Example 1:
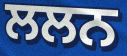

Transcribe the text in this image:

ਲਲਨ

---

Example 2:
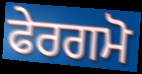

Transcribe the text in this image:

ਫੇਰਗਮੋ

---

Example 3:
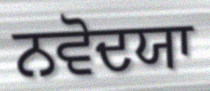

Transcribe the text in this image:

ਨਵੋਦਯਾ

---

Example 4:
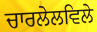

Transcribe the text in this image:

ਚਾਰਲੇਲਵਿਲੇ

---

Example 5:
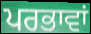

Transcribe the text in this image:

ਪਰਭਾਵਾਂ